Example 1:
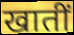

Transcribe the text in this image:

खातीं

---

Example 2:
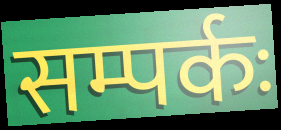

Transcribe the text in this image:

सम्पर्कः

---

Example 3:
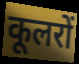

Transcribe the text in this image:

कूलरों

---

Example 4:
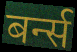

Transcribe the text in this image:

बर्न्स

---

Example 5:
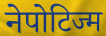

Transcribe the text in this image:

नेपोटिज्म